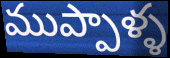
ముప్పాళ్ళ